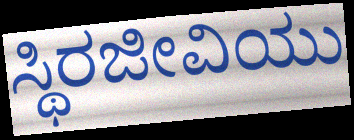
ಸ್ಥಿರಜೀವಿಯು